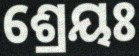
ଶ୍ରେୟଃ